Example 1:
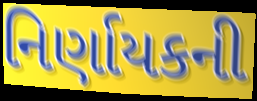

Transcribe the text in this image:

નિર્ણાયકની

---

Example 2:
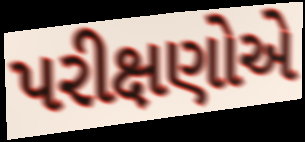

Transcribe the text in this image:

પરીક્ષણોએ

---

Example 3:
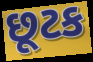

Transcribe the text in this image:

છૂટક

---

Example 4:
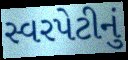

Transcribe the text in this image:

સ્વરપેટીનું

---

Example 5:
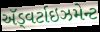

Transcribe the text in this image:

ઍડ્વર્ટાઇઝમેન્ટ